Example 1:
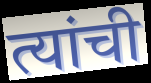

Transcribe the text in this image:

त्‍यांची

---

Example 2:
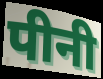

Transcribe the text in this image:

पीनी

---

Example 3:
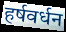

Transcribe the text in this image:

हर्षवर्धन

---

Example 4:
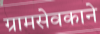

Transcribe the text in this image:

ग्रामसेवकाने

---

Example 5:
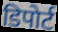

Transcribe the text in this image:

डिपोर्ट